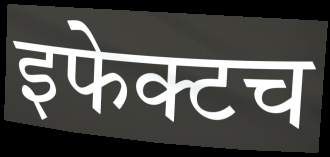
इफेक्टच